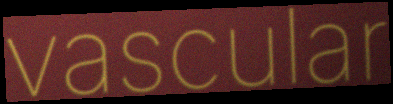
vascular